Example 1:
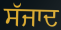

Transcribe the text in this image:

ਸੱਜਾਦ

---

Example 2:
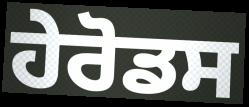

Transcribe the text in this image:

ਹੇਰੋਡਸ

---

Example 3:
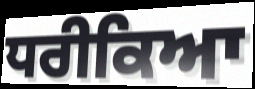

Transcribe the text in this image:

ਧਰੀਕਿਆ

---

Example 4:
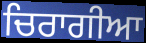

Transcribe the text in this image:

ਚਿਰਾਗੀਆ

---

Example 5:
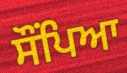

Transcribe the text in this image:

ਸੌਂਪਿਆ